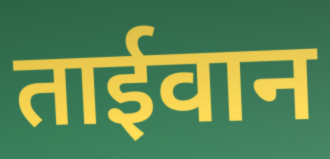
ताईवान